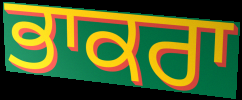
ਭਾਕਰਾ